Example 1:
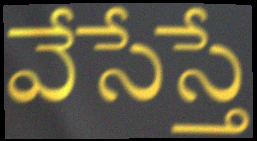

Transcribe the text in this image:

వేసేస్తే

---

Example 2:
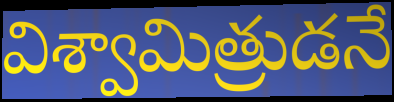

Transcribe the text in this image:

విశ్వామిత్రుడనే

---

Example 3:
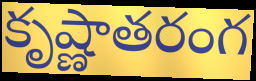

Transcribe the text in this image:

కృష్ణాతరంగ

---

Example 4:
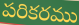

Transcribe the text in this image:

పరికరము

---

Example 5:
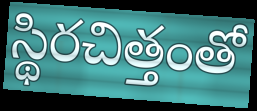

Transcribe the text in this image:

స్థిరచిత్తంతో